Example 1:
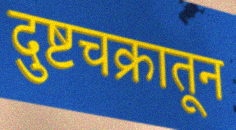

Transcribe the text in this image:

दुष्टचक्रातून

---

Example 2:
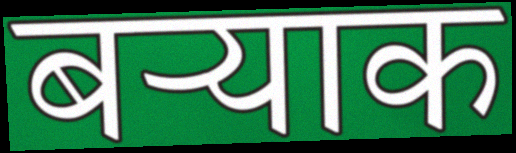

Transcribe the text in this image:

बऱ्याक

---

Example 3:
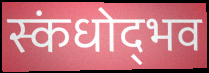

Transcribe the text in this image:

स्कंधोद्भव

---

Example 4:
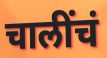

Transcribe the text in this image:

चालींचं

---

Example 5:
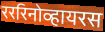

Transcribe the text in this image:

रररिनोव्हायरस